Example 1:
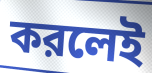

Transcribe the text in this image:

করলেই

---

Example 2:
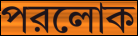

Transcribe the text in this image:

পরলোক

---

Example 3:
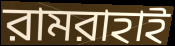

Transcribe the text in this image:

রামরাহাই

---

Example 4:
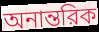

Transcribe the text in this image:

অনান্তরিক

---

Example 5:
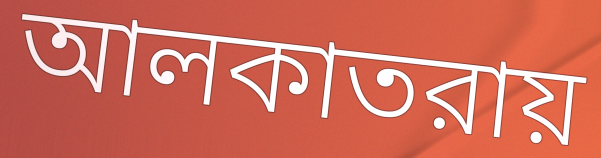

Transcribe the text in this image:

আলকাতরায়